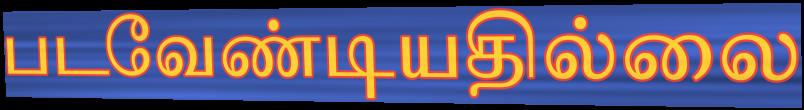
படவேண்டியதில்லை